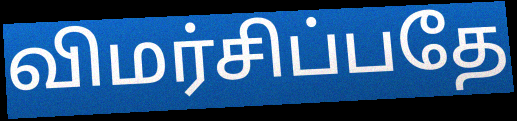
விமர்சிப்பதே